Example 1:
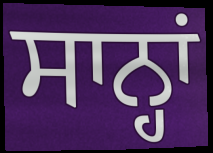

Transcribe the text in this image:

ਸਾਨ੍ਹਾਂ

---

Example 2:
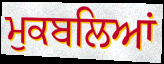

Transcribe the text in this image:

ਮੁਕਬਲਿਆਂ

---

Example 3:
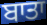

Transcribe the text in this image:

ਬਾਤਾ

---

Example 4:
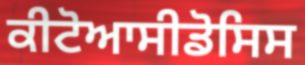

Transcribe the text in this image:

ਕੀਟੋਆਸੀਡੋਸਿਸ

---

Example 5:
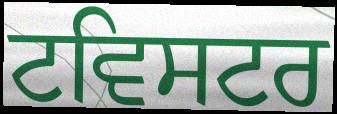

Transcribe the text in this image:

ਟਵਿਸਟਰ